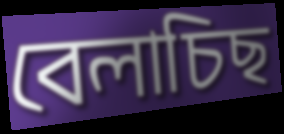
বেলাচিছ